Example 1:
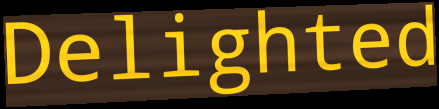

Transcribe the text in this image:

Delighted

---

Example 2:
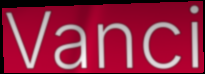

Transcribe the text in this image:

Vanci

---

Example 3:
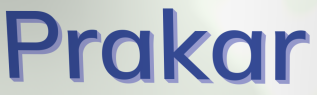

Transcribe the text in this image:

Prakar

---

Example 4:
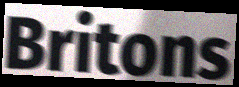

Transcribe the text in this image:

Britons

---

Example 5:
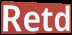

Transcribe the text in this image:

Retd